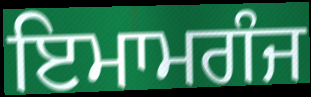
ਇਮਾਮਗੰਜ